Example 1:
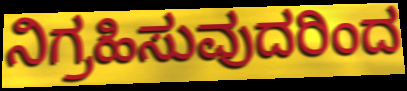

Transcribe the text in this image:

ನಿಗ್ರಹಿಸುವುದರಿಂದ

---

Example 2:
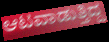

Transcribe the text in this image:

ಆಟವಾಡುತ್ತಿದ್ದ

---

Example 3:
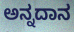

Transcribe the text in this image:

ಅನ್ನದಾನ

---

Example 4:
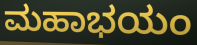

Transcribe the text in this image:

ಮಹಾಭಯಂ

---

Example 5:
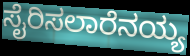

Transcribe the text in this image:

ಸೈರಿಸಲಾರೆನಯ್ಯ